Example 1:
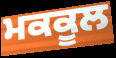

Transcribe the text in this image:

ਮਕਕੂਲ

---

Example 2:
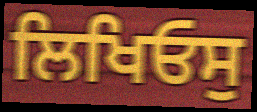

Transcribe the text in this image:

ਲਿਖਿਓਸੁ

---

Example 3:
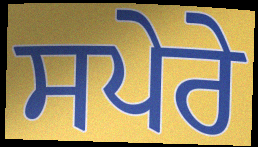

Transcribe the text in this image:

ਸਪੇਰੇ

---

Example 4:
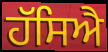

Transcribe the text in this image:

ਹੱਸਿਐ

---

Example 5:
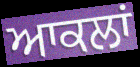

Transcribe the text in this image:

ਆਕਲਾਂ